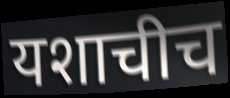
यशाचीच